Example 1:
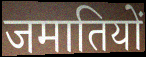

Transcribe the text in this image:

जमातियों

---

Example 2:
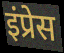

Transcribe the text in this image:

इंप्रेस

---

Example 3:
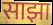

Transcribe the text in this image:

साझा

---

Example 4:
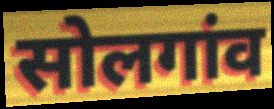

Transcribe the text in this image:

सोलगांव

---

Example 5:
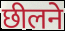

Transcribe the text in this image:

छीलने